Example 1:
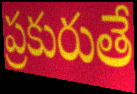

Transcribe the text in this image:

ప్రకురుతే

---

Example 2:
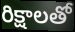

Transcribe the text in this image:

రిక్షాలతో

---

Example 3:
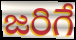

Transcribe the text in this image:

జరిగే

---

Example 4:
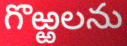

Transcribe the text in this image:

గొఱ్ఱలను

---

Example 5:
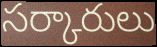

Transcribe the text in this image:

సర్కారులు